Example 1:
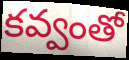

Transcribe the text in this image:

కవ్వంతో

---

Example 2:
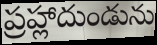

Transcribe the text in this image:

ప్రహ్లాదుండును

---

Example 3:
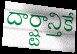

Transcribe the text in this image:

దార్ష్టాన్తికే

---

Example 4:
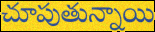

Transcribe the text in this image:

చూపుతున్నాయి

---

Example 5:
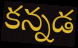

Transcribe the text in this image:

కన్నడ